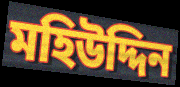
মহিউদ্দিন